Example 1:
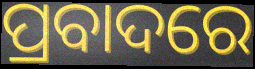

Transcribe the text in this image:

ପ୍ରବାଦରେ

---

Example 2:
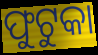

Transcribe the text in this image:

ଫୁଟୁକା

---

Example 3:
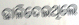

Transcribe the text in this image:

ଢାଳିଦେଇଥିଲେ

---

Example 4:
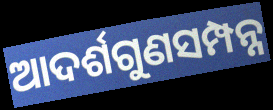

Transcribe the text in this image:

ଆଦର୍ଶଗୁଣସମ୍ପନ୍ନ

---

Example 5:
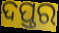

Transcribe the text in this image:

ଦପ୍ତର